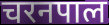
चरनपाल